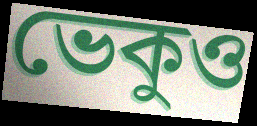
ভেকুও